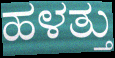
ಹಳತ್ತು